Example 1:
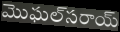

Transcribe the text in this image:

మొఘల్‌సరాయ్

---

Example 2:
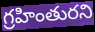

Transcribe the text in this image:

గ్రహింతురని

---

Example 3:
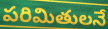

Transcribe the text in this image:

పరిమితులనే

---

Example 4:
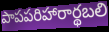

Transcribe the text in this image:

పాపపరిహారార్థబలి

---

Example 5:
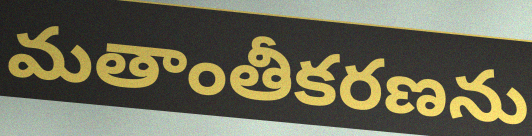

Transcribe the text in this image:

మతాంతీకరణను